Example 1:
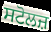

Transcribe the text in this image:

ਸਟੋਲਜ਼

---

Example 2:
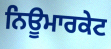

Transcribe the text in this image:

ਨਿਊਮਾਰਕੇਟ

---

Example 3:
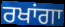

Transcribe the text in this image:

ਰਖਾਂਗਾ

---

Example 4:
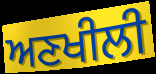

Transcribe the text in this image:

ਅਣਖੀਲੀ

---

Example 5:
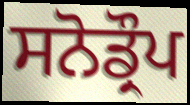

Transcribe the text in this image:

ਸਨੋਡ੍ਰੌਪ